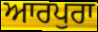
ਆਰਪੁਰਾ